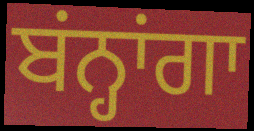
ਬਂਨ੍ਹਾਂਗਾ